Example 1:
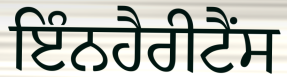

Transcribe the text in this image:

ਇੰਨਹੈਰੀਟੈੰਸ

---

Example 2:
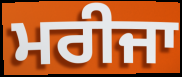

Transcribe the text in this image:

ਮਰੀਜਾ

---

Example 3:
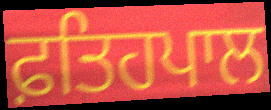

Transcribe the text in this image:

ਫ਼ਤਿਹਪਾਲ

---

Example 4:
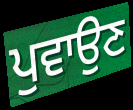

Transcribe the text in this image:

ਪੁਵਾਉਣ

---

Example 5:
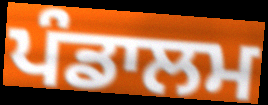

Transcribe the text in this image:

ਪੰਡਾਲਮ